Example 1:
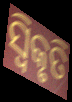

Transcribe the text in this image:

ସ୍ୱିକୃତି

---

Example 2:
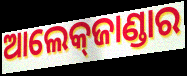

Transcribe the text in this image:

ଆଲେକ୍‌ଜାଣ୍ଡାର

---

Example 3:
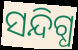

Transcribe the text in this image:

ସନ୍ଦିଗ୍ଧ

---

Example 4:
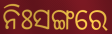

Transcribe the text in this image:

ନିଃସଙ୍ଗରେ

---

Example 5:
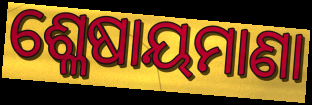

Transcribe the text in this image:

ଶ୍ଳେଷାୟମାଣା